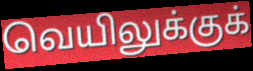
வெயிலுக்குக்